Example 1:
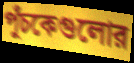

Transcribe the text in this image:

পুঁচকেগুলোর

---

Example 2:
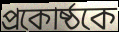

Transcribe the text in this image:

প্রকোষ্ঠকে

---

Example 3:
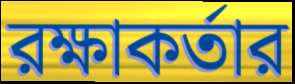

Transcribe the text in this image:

রক্ষাকর্তার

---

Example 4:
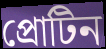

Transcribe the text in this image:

প্রোটিন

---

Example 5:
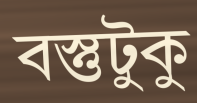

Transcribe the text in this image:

বস্তুটুকু